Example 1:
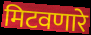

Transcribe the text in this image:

मिटवणारे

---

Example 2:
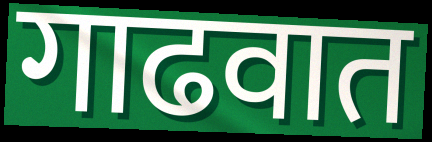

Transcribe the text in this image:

गाढवात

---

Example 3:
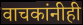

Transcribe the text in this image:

वाचकांनीही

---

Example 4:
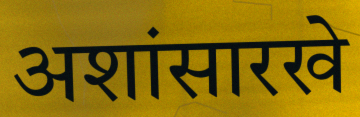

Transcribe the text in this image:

अशांसारखे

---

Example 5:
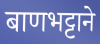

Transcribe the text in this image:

बाणभट्टाने